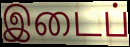
இடைப்